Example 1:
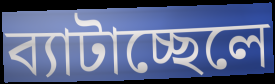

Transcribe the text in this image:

ব্যাটাচ্ছেলে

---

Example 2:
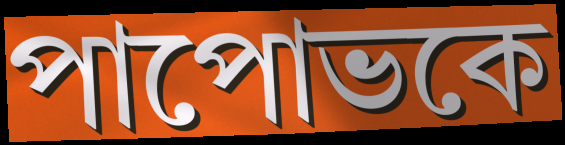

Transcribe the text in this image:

পাপোভকে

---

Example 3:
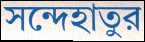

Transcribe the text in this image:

সন্দেহাতুর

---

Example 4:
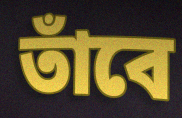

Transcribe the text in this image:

তাঁবে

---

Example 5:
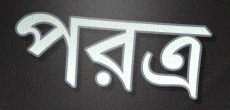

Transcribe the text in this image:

পরত্র